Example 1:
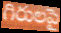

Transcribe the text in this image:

గిరులపై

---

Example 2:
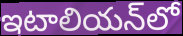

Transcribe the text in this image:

ఇటాలియన్‌లో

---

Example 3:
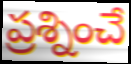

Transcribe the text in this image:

ప్రశ్నించే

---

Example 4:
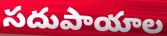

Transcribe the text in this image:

సదుపాయాల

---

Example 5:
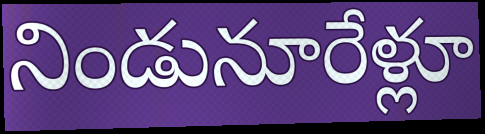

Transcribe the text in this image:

నిండునూరేళ్లూ